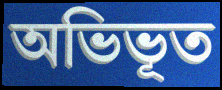
অভিভূত